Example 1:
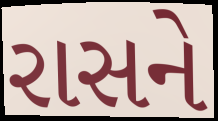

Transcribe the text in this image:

રાસને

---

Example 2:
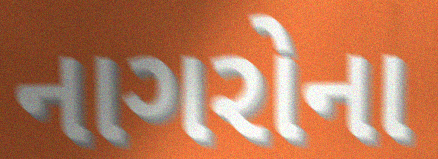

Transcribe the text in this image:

નાગરોના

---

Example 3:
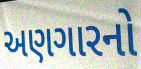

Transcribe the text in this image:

અણગારનો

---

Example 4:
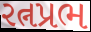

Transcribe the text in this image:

રત્નપ્રભ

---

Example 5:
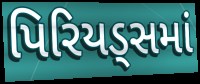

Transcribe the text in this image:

પિરિયડ્સમાં